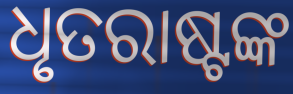
ଧୃତରାଷ୍ଟଙ୍କ